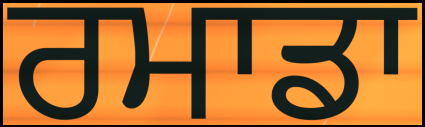
ਰਮਾਡਾ